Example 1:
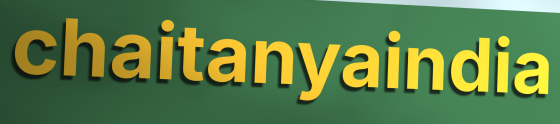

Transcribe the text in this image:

chaitanyaindia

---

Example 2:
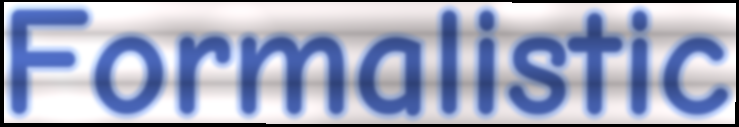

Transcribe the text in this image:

Formalistic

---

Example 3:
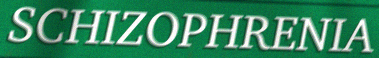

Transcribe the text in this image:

SCHIZOPHRENIA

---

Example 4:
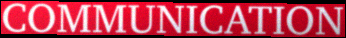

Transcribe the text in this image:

COMMUNICATION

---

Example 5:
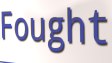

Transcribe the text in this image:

Fought